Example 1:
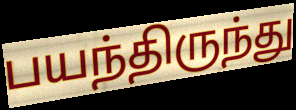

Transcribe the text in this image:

பயந்திருந்து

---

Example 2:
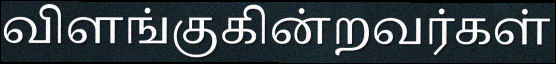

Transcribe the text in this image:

விளங்குகின்றவர்கள்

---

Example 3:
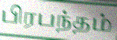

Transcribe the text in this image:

பிரபந்தம்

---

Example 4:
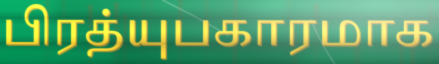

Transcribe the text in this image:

பிரத்யுபகாரமாக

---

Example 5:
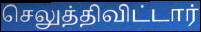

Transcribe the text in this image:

செலுத்திவிட்டார்